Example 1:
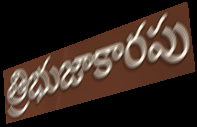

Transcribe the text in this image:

త్రిభుజాకారపు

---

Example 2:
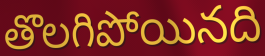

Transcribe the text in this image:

తొలగిపోయినది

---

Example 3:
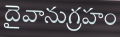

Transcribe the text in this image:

దైవానుగ్రహం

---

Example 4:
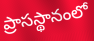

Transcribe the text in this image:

ప్రాసస్థానంలో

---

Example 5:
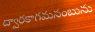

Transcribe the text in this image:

ద్వారకాగమనంబును